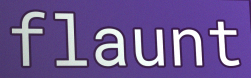
flaunt